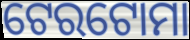
ଟେରଟୋମା